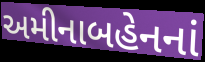
અમીનાબહેનનાં